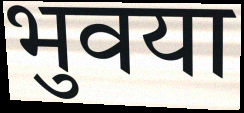
भुवया